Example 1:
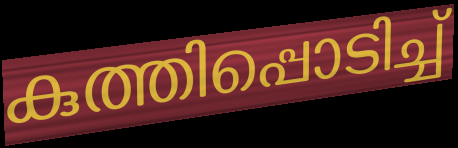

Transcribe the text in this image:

കുത്തിപ്പൊടിച്ച്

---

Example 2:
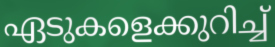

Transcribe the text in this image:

ഏടുകളെക്കുറിച്ച്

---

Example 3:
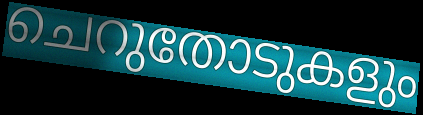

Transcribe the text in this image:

ചെറുതോടുകളും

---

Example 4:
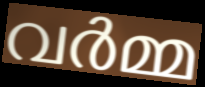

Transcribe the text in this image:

വർമ്മ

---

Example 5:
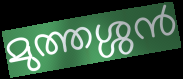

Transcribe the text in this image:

മുത്തശ്ശൻ